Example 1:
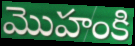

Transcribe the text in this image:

మొహంకి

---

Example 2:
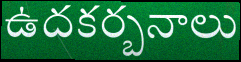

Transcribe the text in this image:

ఉదకర్బనాలు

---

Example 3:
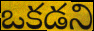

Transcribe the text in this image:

ఒకడని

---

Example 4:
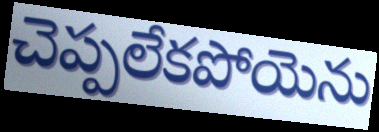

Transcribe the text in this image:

చెప్పలేకపోయెను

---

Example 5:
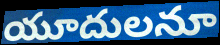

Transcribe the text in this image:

యూదులనూ